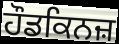
ਹੌਡਕਿਨਜ਼